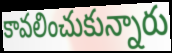
కావలించుకున్నారు